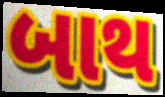
બાથ